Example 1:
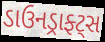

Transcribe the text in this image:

ડાઉનડ્રાફ્ટ્સ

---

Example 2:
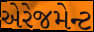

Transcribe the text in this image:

એરેજમેન્ટ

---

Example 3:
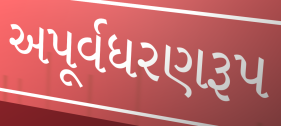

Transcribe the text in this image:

અપૂર્વધરણરૂપ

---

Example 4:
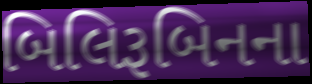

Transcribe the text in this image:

બિલિરૂબિનના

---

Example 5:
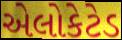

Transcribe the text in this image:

એલોકેટેડ